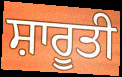
ਸ਼ਾਰੂਤੀ